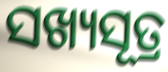
ସଖ୍ୟସୂତ୍ର